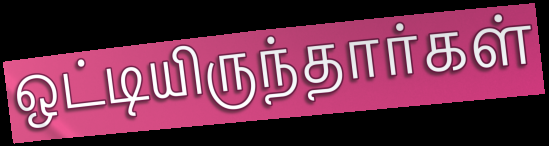
ஒட்டியிருந்தார்கள்